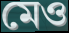
মেও